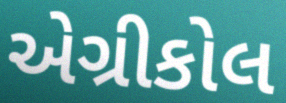
એગ્રીકોલ